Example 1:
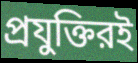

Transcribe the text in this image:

প্রযুক্তিরই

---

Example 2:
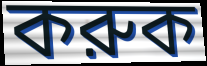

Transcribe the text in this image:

করুক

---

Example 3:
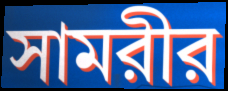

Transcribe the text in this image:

সামরীর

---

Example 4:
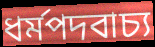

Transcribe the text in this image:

ধর্মপদবাচ্য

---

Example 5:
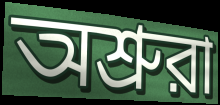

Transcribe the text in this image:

অশ্রুরা